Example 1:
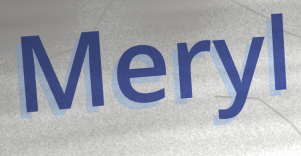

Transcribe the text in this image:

Meryl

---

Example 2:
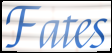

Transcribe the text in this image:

Fates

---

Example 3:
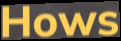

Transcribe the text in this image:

Hows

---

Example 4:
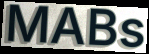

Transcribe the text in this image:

MABs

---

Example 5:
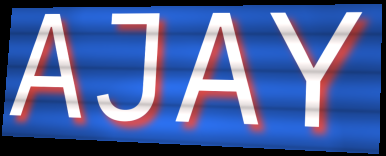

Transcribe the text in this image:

AJAY